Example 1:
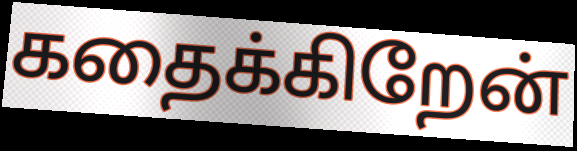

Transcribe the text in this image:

கதைக்கிறேன்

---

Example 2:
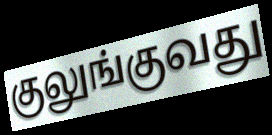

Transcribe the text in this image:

குலுங்குவது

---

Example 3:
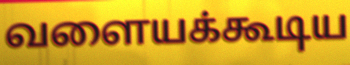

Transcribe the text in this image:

வளையக்கூடிய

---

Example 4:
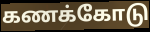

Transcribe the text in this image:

கணக்கோடு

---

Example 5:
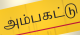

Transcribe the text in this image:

அம்பகட்டு